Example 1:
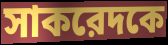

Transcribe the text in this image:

সাকরেদকে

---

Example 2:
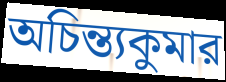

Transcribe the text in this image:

অচিন্ত্যকুমার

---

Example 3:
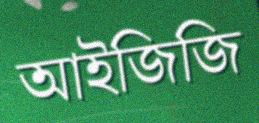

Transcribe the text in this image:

আইজিজি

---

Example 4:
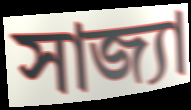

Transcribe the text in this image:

সাজ্যা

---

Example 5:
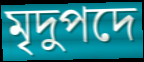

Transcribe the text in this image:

মৃদুপদে